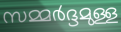
സമ്മർദ്ദമുള്ള